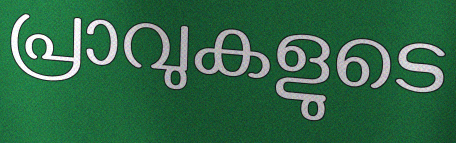
പ്രാവുകളുടെ